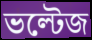
ভল্টেজ